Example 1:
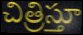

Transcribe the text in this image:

చిత్రిస్తూ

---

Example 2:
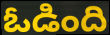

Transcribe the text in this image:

ఓడింది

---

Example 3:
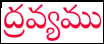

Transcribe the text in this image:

ద్రవ్యము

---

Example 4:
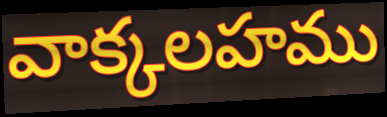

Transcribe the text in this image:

వాక్కలహము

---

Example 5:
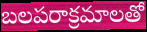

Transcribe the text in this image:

బలపరాక్రమాలతో